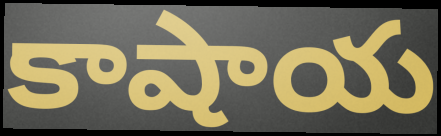
కాషాయ